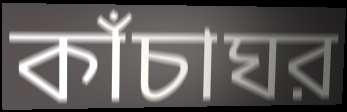
কাঁচাঘর